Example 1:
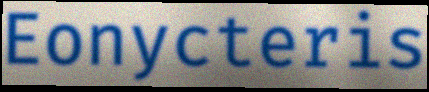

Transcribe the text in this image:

Eonycteris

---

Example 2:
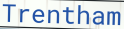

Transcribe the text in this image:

Trentham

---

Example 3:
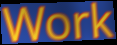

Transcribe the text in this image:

Work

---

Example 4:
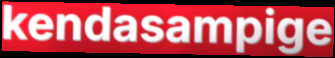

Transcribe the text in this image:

kendasampige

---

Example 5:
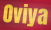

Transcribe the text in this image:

Oviya